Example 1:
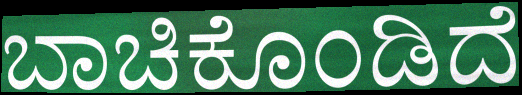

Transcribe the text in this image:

ಬಾಚಿಕೊಂಡಿದೆ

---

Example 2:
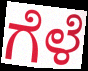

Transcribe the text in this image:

ಗೆಳೆ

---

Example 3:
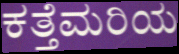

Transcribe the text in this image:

ಕತ್ತೆಮರಿಯ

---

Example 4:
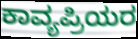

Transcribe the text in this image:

ಕಾವ್ಯಪ್ರಿಯರ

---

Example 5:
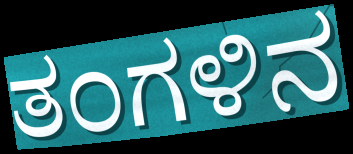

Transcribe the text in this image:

ತಂಗಳಿನ